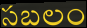
సబలం